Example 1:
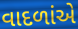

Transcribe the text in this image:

વાદળાંએ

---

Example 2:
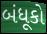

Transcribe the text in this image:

બંધૂકો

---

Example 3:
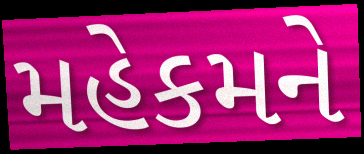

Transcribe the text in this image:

મહેકમને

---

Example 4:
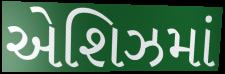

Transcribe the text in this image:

એશિઝમાં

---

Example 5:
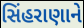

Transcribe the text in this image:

સિંહરાણાને